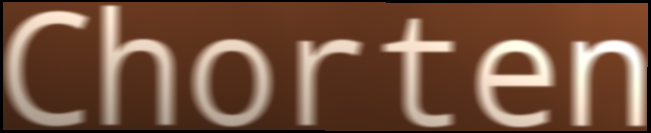
Chorten